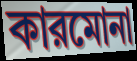
কারমোনা